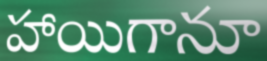
హాయిగానూ